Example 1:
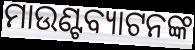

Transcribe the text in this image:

ମାଉଣ୍ଟବ୍ୟାଟନଙ୍କ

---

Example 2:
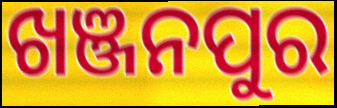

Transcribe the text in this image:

ଖଞ୍ଜନପୁର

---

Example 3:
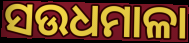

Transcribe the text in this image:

ସଉଧମାଳା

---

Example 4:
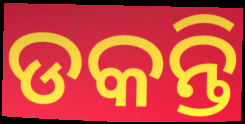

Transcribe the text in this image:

ଡକନ୍ତି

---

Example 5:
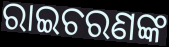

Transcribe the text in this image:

ରାଇଚରଣଙ୍କ